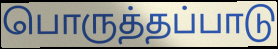
பொருத்தப்பாடு